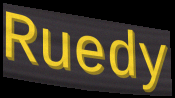
Ruedy